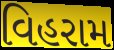
વિહરામ